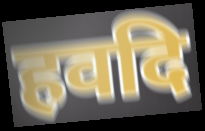
हवदि